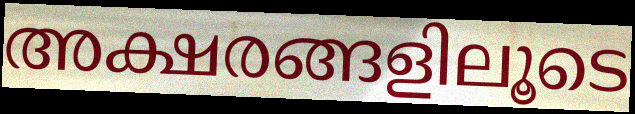
അക്ഷരങ്ങളിലൂടെ